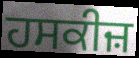
ਹਸਕੀਜ਼